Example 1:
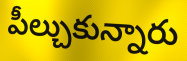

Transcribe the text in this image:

పీల్చుకున్నారు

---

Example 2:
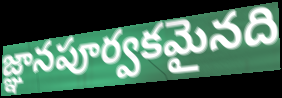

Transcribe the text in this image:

జ్ఞానపూర్వకమైనది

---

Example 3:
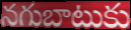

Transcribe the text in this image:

నగుబాటుకు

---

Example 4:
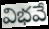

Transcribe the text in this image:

విభవే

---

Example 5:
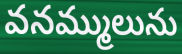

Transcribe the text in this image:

వనమ్ములును